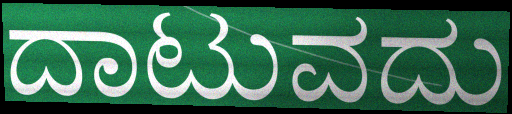
ದಾಟುವದು